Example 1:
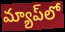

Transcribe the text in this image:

మ్యాప్‌లో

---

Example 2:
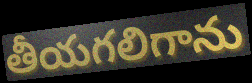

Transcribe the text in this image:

తీయగలిగాను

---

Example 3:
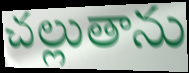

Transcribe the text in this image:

చల్లుతాను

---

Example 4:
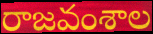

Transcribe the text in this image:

రాజవంశాల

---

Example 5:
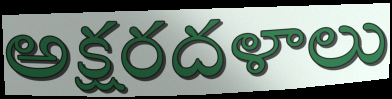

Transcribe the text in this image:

అక్షరదళాలు